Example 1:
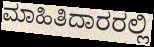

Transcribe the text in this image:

ಮಾಹಿತಿದಾರರಲ್ಲಿ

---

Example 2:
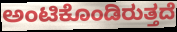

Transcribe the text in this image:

ಅಂಟಿಕೊಂಡಿರುತ್ತದೆ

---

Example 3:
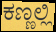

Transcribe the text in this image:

ಕಣ್ಣಲ್ಲಿ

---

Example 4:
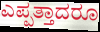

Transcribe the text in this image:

ಎಪ್ಪತ್ತಾದರೂ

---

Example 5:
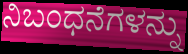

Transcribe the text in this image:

ನಿಬಂಧನೆಗಳನ್ನು